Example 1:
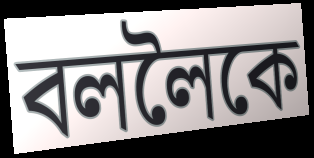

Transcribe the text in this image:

বললৈকে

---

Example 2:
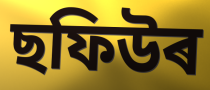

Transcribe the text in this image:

ছফিউৰ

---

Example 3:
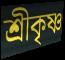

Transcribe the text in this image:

শ্ৰীকৃষ্ণ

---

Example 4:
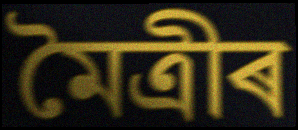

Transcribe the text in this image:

মৈত্ৰীৰ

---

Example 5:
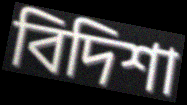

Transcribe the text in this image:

বিদিশা